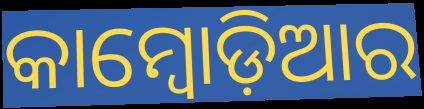
କାମ୍ବୋଡ଼ିଆର